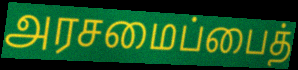
அரசமைப்பைத்